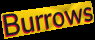
Burrows